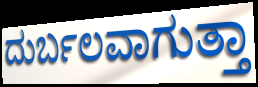
ದುರ್ಬಲವಾಗುತ್ತಾ